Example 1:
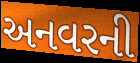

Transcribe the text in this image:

અનવરની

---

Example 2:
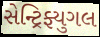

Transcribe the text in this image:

સેન્ટ્રિફ્યુગલ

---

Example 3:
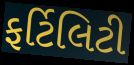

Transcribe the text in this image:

ફર્ટિલિટી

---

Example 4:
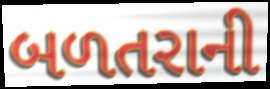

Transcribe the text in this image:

બળતરાની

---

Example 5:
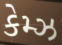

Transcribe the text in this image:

કેમ્ઝ